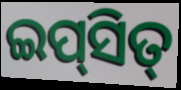
ଇପ୍‌ସିତ୍